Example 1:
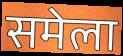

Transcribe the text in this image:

समेला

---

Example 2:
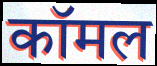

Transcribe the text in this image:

कॉमल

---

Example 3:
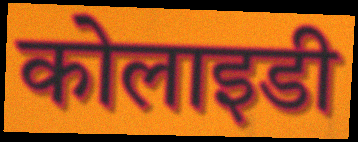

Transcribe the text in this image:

कोलाइडी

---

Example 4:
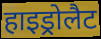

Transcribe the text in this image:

हाइड्रोलैट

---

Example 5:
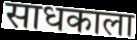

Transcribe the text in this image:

साधकाला